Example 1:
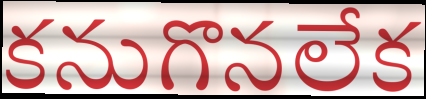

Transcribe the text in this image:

కనుగొనలేక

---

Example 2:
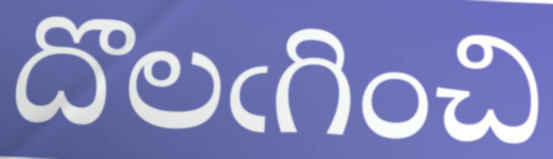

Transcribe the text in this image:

దొలఁగించి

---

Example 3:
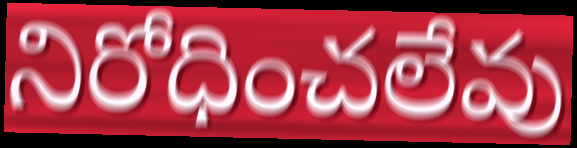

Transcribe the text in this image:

నిరోధించలేవు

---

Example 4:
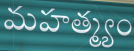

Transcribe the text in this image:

మహత్మ్యం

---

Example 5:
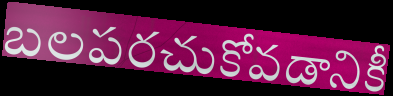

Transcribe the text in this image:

బలపరచుకోవడానికీ